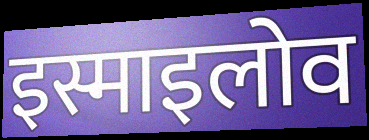
इस्माइलोव